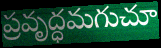
ప్రవృద్ధమగుచూ